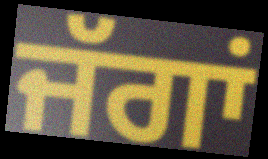
ਜੱਗਾਂ